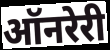
ऑनरेरी